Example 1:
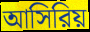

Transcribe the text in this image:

আসিরিয়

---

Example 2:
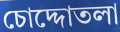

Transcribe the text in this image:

চোদ্দোতলা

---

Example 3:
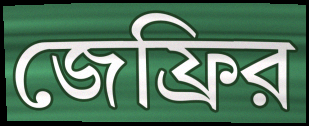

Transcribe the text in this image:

জেফ্রির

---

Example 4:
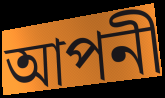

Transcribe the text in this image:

আপনী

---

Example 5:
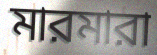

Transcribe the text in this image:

মারমারা